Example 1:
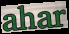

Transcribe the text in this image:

ahar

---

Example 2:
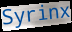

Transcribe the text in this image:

Syrinx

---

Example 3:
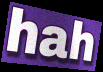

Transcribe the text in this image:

hah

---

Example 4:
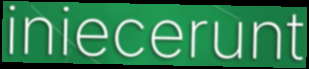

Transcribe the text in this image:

iniecerunt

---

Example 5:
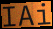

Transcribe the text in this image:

IAi